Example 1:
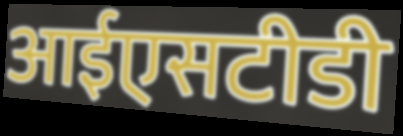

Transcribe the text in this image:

आईएसटीडी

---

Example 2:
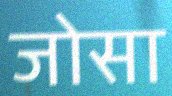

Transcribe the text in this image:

जोसा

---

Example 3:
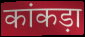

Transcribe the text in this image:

कांकड़ा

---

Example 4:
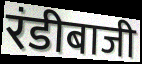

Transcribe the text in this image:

रंडीबाजी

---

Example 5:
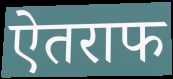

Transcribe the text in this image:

ऐतराफ